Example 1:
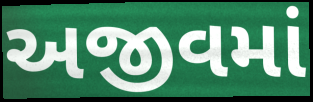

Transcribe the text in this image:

અજીવમાં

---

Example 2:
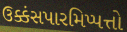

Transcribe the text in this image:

ઉક્કંસપારમિપ્પત્તો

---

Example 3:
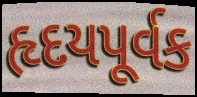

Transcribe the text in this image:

હૃદયપૂર્વક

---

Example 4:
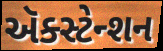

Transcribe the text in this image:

ઍક્સ્ટેન્શન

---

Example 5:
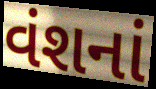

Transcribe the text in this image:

વંશનાં